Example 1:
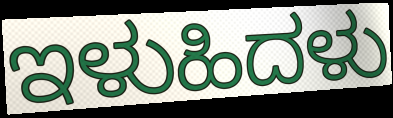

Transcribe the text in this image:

ಇಳುಹಿದಳು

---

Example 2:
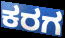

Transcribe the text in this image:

ಕರಗ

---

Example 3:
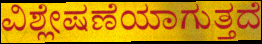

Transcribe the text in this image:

ವಿಶ್ಲೇಷಣೆಯಾಗುತ್ತದೆ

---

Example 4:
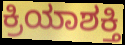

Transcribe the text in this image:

ಕ್ರಿಯಾಶಕ್ತಿ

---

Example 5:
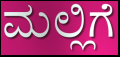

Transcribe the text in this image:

ಮಲ್ಲಿಗೆ